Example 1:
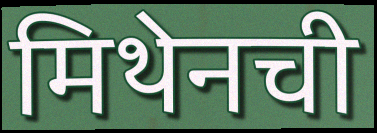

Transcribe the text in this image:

मिथेनची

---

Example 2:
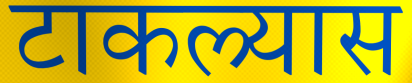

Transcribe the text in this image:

टाकल्यास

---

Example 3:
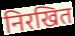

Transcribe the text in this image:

निरखित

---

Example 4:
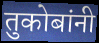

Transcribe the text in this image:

तुकोबांनी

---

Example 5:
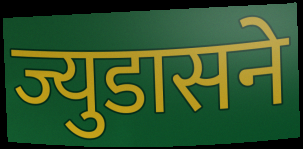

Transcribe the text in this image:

ज्युडासने